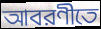
আবরণীতে